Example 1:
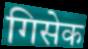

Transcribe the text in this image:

गिसेक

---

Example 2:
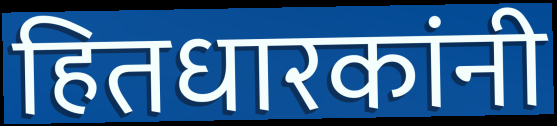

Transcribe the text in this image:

हितधारकांनी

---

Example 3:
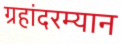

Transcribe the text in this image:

ग्रहांदरम्यान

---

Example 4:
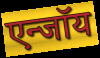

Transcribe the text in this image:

एन्जॉय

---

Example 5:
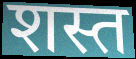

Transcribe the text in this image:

शस्त